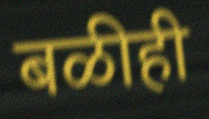
बळीही